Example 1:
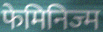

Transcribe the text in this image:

फेमिनिज्‍म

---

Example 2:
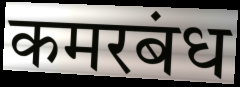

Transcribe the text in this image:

कमरबंध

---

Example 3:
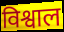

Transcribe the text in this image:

विश्वाल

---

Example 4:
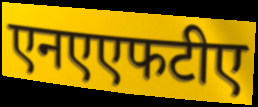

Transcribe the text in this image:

एनएएफटीए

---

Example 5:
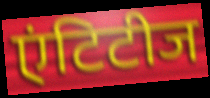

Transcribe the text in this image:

एंटिटीज